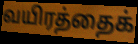
வயிரத்தைக்